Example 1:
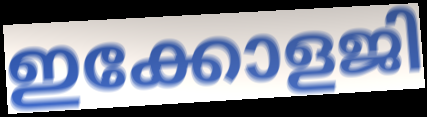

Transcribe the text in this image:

ഇക്കോളജി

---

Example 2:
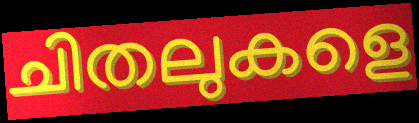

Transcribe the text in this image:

ചിതലുകളെ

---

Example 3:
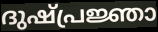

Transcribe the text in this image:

ദുഷ്പ്രജ്ഞാ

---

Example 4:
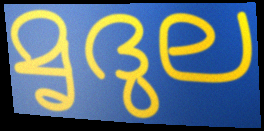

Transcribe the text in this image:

മൃദുല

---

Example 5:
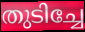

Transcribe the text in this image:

തുടിച്ചേ